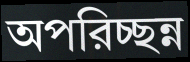
অপরিচ্ছন্ন